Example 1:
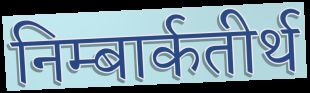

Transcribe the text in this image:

निम्बार्कतीर्थ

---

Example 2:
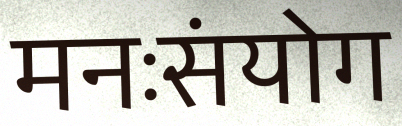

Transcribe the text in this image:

मनःसंयोग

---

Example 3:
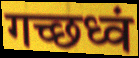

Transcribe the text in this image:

गच्छध्वं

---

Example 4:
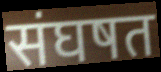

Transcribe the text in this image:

संघषत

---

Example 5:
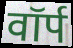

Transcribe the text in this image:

वॉर्प